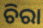
ଚିରା